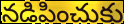
నడిపించుకు